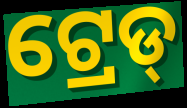
ଟ୍ରେଡ୍